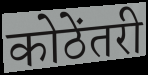
कोठेंतरी